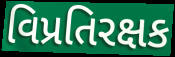
વિપ્રતિરક્ષક